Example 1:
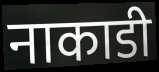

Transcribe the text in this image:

नाकाडी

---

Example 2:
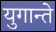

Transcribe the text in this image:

युगान्ते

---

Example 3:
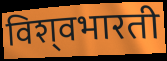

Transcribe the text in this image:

विश्वभारती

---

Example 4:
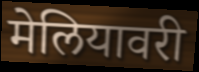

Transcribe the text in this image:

मेलियावरी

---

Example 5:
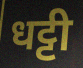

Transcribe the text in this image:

धट्टी